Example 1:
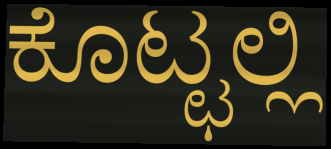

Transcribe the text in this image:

ಕೊಟ್ಟಲ್ಲಿ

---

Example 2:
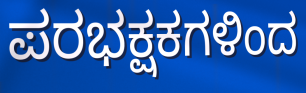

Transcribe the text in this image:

ಪರಭಕ್ಷಕಗಳಿಂದ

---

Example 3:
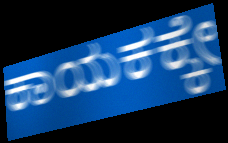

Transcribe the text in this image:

ಕಾಯಕಕ್ಕೇ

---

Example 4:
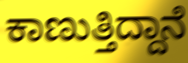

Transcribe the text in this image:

ಕಾಣುತ್ತಿದ್ದಾನೆ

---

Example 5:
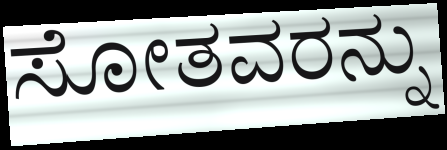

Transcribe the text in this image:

ಸೋತವರನ್ನು